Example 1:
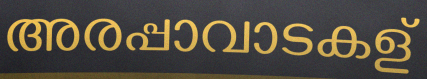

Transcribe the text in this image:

അരപ്പാവാടകള്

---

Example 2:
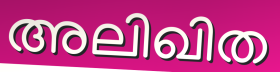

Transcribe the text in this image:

അലിഖിത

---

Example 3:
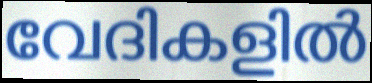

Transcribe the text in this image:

വേദികളിൽ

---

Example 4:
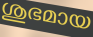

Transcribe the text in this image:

ശുഭമായ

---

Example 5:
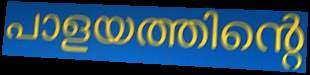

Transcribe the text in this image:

പാളയത്തിന്റെ